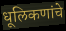
धूलिकणांचे